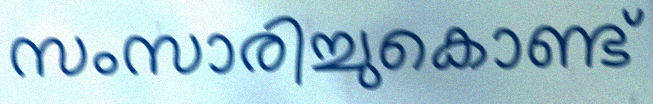
സംസാരിച്ചുകൊണ്ട്